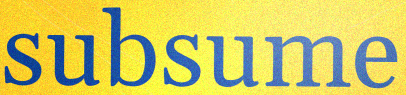
subsume